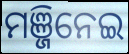
ମଞ୍ଜିନେଇ